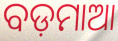
ବଡ଼ମାଆ